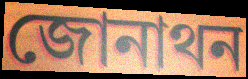
জোনাথন